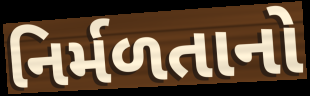
નિર્મળતાનો